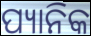
ପ୍ୟାନିକ